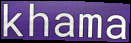
khama